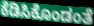
ಕೆಡಿಸಿಕೊಂಡಂತೆ